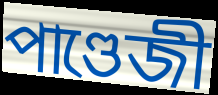
পাণ্ডেজী